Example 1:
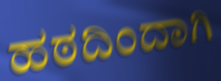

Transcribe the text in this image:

ಹಠದಿಂದಾಗಿ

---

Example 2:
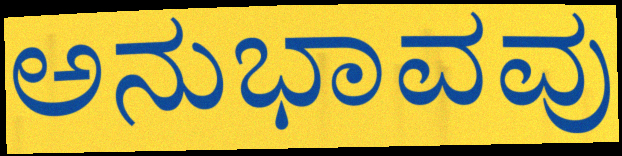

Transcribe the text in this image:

ಅನುಭಾವವು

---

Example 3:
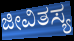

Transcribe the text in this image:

ಜೀವಿತಸ್ಯ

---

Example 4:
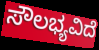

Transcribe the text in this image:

ಸೌಲಭ್ಯವಿದೆ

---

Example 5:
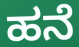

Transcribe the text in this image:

ಹನೆ